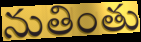
నుతింతు